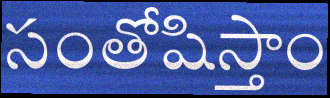
సంతోషిస్తాం